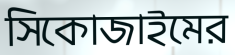
সিকোজাইমের